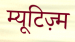
म्यूटिज़्म